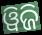
ୱିଜି